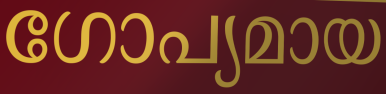
ഗോപ്യമായ